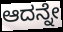
ಆದನ್ನೇ